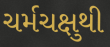
ચર્મચક્ષુથી